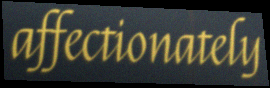
affectionately